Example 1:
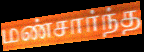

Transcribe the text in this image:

மண்சார்ந்த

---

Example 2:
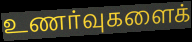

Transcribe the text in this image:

உணர்வுகளைக்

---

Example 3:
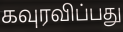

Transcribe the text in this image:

கவுரவிப்பது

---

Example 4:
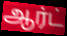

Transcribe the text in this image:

ஆர்ட்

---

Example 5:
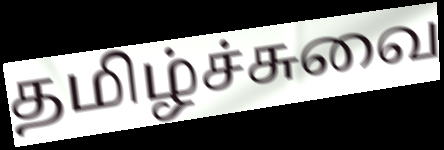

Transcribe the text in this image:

தமிழ்ச்சுவை